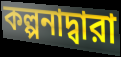
কল্পনাদ্বারা